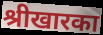
श्रीखारका